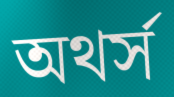
অথর্স